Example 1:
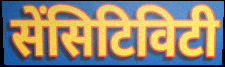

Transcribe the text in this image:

सेंसिटिविटी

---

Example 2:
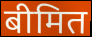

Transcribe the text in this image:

बीमित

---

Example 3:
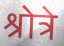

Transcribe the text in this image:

श्रोत्रे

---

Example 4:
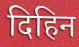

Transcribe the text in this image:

दिहिन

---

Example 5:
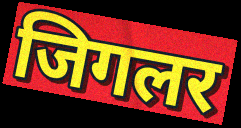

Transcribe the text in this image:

जिगलर